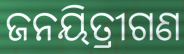
ଜନୟିତ୍ରୀଗଣ